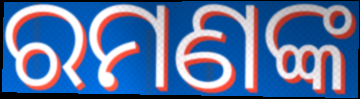
ରମଣଙ୍କ